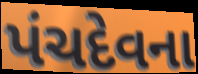
પંચદેવના